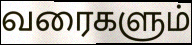
வரைகளும்